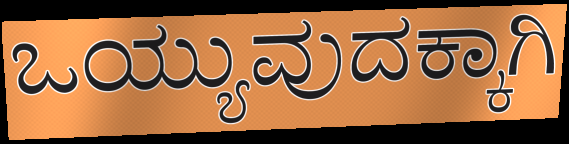
ಒಯ್ಯುವುದಕ್ಕಾಗಿ